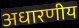
अधारणीय